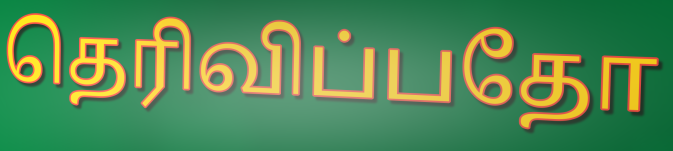
தெரிவிப்பதோ